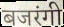
बजरंगी